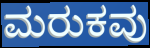
ಮರುಕವು